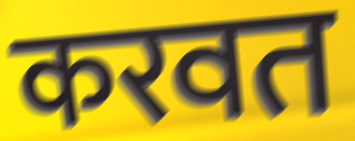
करवत